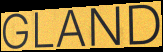
GLAND